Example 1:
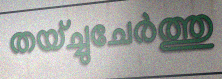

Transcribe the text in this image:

തയ്ച്ചുചേർത്തു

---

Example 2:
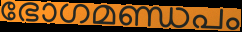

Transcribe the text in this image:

ഭോഗമണ്ഡപം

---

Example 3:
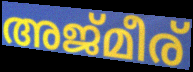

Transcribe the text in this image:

അജ്മീര്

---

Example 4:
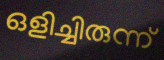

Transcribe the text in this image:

ഒളിച്ചിരുന്ന്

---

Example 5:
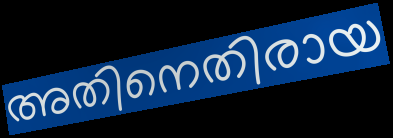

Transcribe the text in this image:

അതിനെതിരായ